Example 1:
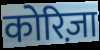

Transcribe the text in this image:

कोरिज़ा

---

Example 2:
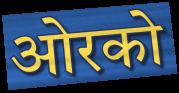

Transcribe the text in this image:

ओरको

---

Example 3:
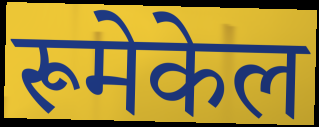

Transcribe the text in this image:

रूमेकेल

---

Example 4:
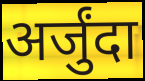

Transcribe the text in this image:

अर्जुंदा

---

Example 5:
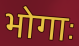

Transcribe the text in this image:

भोगाः